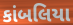
કાંબલિયા